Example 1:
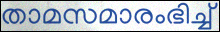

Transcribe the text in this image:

താമസമാരംഭിച്ച്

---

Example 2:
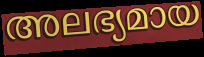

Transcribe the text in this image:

അലഭ്യമായ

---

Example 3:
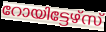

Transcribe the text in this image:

റോയിട്ടേഴ്സ്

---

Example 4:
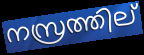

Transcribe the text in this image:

നസ്രത്തില്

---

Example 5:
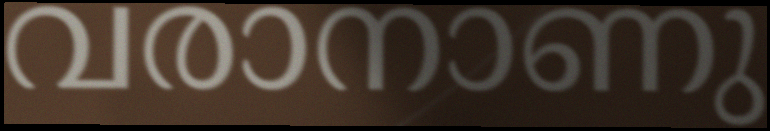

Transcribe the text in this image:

വരാനാണു